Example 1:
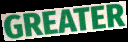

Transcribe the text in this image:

GREATER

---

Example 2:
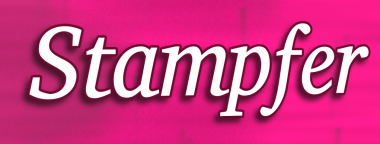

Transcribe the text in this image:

Stampfer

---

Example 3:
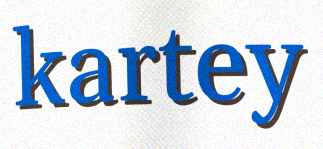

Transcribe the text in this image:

kartey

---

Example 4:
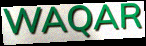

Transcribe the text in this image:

WAQAR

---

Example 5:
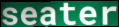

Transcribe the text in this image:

seater